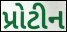
પ્રોટીન